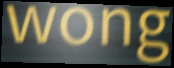
wong